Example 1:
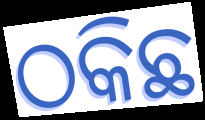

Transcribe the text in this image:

ଠକିଛ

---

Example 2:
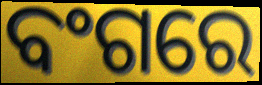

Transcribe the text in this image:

ବଂଗରେ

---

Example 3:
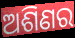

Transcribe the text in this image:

ଅଶିଣର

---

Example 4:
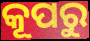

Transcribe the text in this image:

କୂପରୁ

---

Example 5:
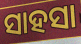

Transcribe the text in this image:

ସାହସା